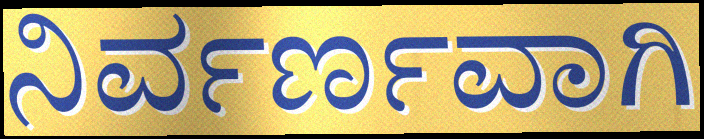
ನಿರ್ವರ್ಣವಾಗಿ